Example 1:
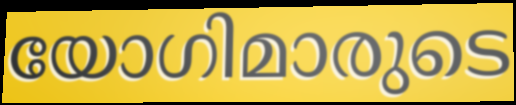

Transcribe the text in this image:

യോഗിമാരുടെ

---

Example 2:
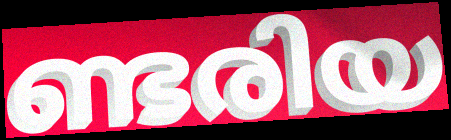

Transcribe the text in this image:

ണ്ടരിയ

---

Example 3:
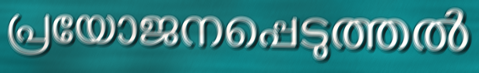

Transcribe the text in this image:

പ്രയോജനപ്പെടുത്തൽ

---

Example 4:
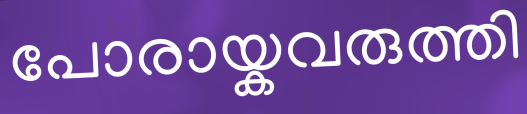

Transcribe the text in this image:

പോരായ്കവരുത്തി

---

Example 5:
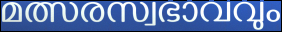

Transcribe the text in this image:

മത്സരസ്വഭാവവും